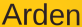
Arden